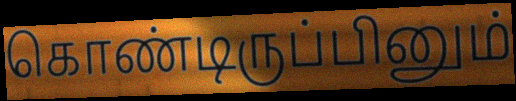
கொண்டிருப்பினும்